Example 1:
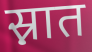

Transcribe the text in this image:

स्नात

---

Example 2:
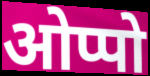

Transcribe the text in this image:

ओप्पो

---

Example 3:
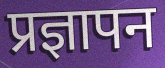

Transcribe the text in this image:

प्रज्ञापन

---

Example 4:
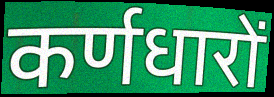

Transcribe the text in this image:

कर्णधारों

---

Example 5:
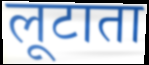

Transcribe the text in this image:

लूटाता